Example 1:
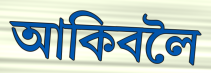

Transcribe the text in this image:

আকিবলৈ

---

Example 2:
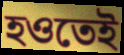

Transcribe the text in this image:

হওতেই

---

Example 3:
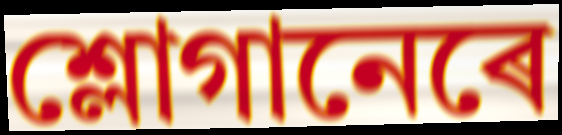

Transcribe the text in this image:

শ্লোগানেৰে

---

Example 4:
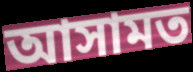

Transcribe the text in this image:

আসামত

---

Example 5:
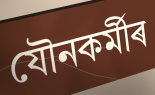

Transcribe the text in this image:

যৌনকৰ্মীৰ